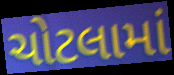
ચોટલામાં